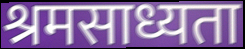
श्रमसाध्यता